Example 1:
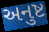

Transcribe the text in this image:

અનુષ્ટ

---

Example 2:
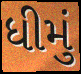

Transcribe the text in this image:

ધીમું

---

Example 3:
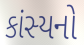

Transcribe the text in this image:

કાંસ્યનો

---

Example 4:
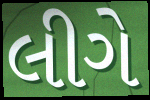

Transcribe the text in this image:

લીગે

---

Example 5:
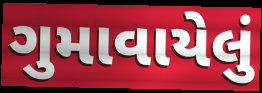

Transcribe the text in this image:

ગુમાવાયેલું